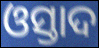
ଓସ୍ତାଦ